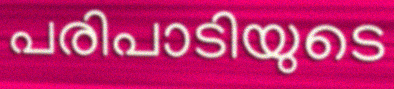
പരിപാടിയുടെ